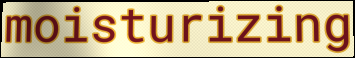
moisturizing